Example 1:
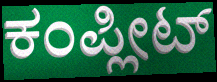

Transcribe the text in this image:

ಕಂಪ್ಲೀಟ್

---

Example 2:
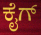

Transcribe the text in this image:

ಕೈಗ್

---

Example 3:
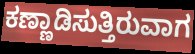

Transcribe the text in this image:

ಕಣ್ಣಾಡಿಸುತ್ತಿರುವಾಗ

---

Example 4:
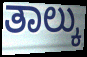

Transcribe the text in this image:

ತಾಲ್ಕು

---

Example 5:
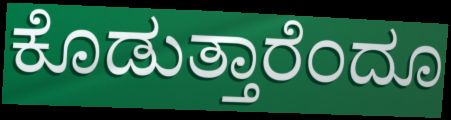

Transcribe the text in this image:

ಕೊಡುತ್ತಾರೆಂದೂ